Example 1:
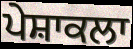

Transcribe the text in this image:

ਪੇਸ਼ਾਕਲਾ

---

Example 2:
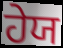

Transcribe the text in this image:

ਹੇਯ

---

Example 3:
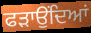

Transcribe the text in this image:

ਫੜਾਉਂਦਿਆਂ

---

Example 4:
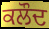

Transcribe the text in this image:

ਕਲੌਦ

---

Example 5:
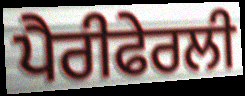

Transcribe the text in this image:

ਪੈਰੀਫੇਰਲੀ